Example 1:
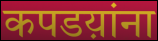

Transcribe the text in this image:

कपडय़ांना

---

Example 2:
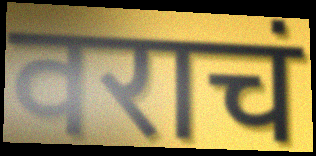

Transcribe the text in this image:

वराचं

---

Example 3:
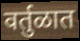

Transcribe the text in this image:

वर्तुळात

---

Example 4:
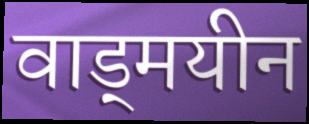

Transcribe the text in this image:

वाड्‌मयीन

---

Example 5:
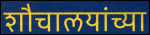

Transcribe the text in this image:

शौचालयांच्या